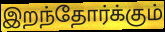
இறந்தோர்க்கும்